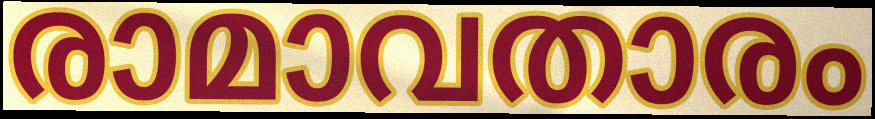
രാമാവതാരം